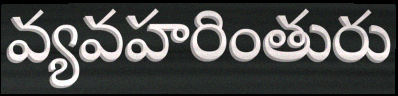
వ్యవహరింతురు